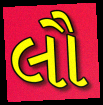
લૌ